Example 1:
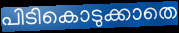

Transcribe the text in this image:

പിടികൊടുക്കാതെ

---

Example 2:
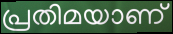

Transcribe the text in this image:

പ്രതിമയാണ്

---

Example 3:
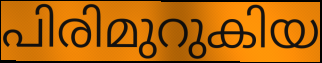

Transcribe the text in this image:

പിരിമുറുകിയ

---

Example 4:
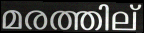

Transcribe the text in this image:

മരത്തില്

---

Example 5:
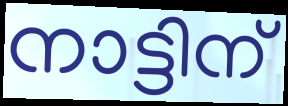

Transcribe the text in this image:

നാട്ടിന്